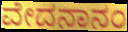
ವೇದನಾನಂ